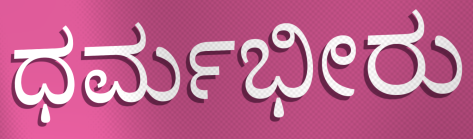
ಧರ್ಮಭೀರು